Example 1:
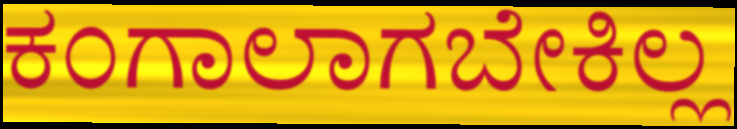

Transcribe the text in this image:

ಕಂಗಾಲಾಗಬೇಕಿಲ್ಲ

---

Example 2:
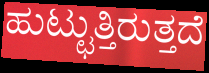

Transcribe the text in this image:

ಹುಟ್ಟುತ್ತಿರುತ್ತದೆ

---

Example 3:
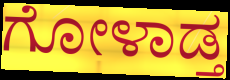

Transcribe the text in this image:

ಗೋಳಾಡ್ತ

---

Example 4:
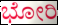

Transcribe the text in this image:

ಭೋರಿ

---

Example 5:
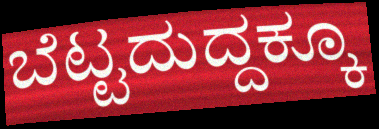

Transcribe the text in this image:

ಬೆಟ್ಟದುದ್ದಕ್ಕೂ